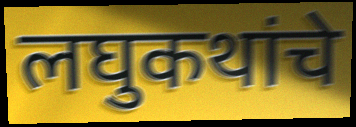
लघुकथांचे